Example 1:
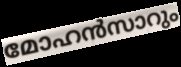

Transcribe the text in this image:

മോഹൻസാറും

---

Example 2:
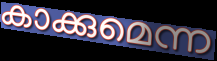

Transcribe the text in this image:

കാക്കുമെന്ന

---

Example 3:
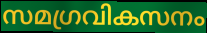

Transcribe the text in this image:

സമഗ്രവികസനം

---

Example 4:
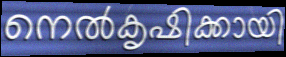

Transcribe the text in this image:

നെൽകൃഷിക്കായി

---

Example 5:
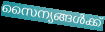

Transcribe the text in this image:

സൈന്യങ്ങൾക്ക്